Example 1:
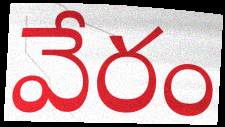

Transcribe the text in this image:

వేరం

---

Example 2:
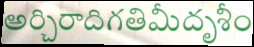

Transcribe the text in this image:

అర్చిరాదిగతిమీదృశీం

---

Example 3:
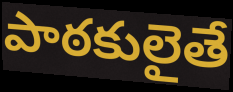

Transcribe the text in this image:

పాఠకులైతే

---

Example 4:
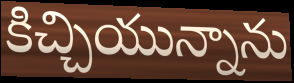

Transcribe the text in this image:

కిచ్చియున్నాను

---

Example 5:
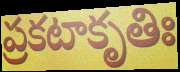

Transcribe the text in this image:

ప్రకటాకృతిః